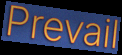
Prevail